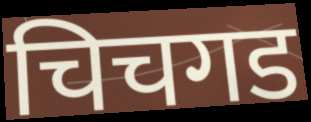
चिचगड